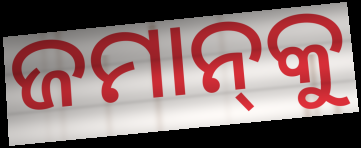
ଜମାନ୍‍କୁ